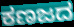
ಕಣಜದ